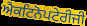
ਐਕਟਿਨੋਪਟੇਰੀਜੀ